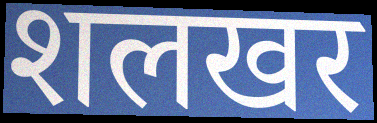
शलखर